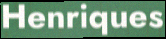
Henriques